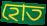
হোত